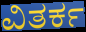
ವಿತರ್ಕ